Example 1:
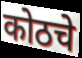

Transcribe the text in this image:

कोठचे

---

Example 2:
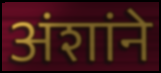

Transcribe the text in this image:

अंशांने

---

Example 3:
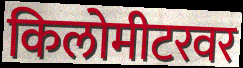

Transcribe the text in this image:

किलोमीटरवर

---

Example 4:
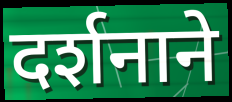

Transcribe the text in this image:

दर्शनाने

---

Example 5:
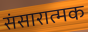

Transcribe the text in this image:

संसारात्मक